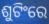
ଶୁଟିଂରେ